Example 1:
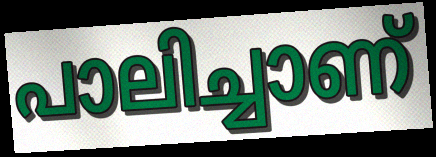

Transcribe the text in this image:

പാലിച്ചാണ്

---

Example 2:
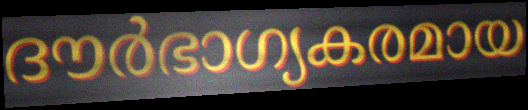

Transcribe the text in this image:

ദൗർഭാഗ്യകരമായ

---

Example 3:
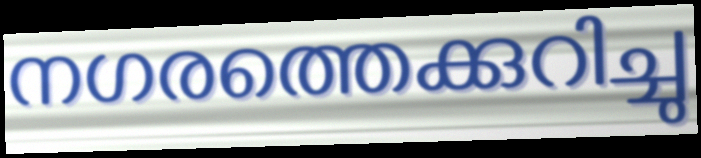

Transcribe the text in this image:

നഗരത്തെക്കുറിച്ചു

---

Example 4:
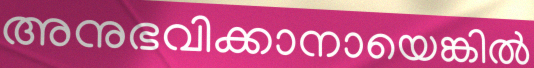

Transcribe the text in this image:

അനുഭവിക്കാനായെങ്കിൽ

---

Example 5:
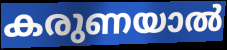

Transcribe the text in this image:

കരുണയാൽ